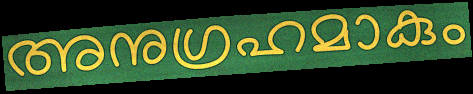
അനുഗ്രഹമാകും